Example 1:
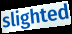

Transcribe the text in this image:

slighted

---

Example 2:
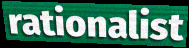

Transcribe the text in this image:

rationalist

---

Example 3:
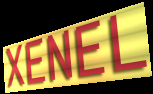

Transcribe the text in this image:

XENEL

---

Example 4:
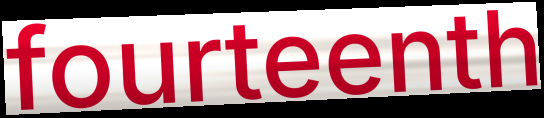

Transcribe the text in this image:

fourteenth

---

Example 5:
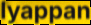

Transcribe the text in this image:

Iyappan